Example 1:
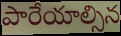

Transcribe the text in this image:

పారేయాల్సిన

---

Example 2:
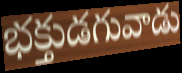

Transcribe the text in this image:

భక్తుడగువాడు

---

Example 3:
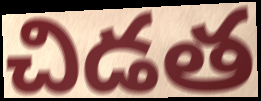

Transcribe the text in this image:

చిడత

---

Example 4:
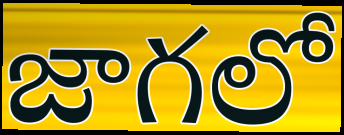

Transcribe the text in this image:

జాగలో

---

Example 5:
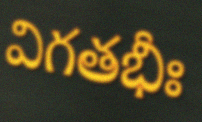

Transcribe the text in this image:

విగతభీః